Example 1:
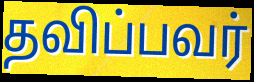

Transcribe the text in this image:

தவிப்பவர்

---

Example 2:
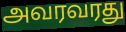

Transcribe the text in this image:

அவரவரது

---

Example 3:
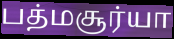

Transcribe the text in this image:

பத்மசூர்யா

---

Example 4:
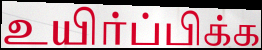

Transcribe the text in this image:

உயிர்ப்பிக்க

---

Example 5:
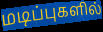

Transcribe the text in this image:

மடிப்புகளில்